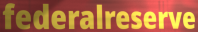
federalreserve